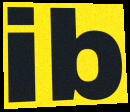
ib